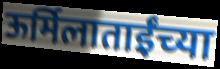
ऊर्मिलाताईंच्या